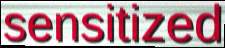
sensitized